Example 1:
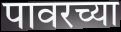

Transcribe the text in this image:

पावरच्या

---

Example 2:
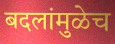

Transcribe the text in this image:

बदलांमुळेच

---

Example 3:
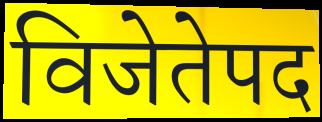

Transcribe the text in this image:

विजेतेपद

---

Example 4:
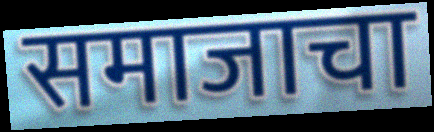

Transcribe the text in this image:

समाजाचा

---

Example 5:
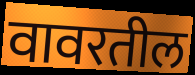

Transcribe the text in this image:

वावरतील